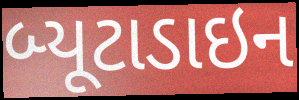
બ્યૂટાડાઇન